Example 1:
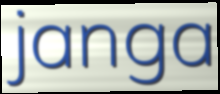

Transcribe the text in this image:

janga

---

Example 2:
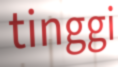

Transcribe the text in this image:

tinggi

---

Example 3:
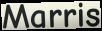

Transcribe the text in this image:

Marris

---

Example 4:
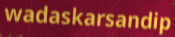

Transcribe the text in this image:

wadaskarsandip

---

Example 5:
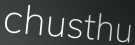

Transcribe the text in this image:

chusthu